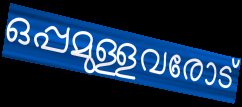
ഒപ്പമുള്ളവരോട്